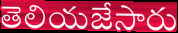
తెలియజేసారు